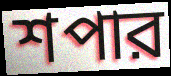
শপার